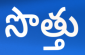
సొత్తు